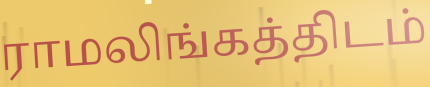
ராமலிங்கத்திடம்